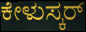
ಕೇಳುಸ್ಕರ್